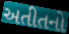
અતીતનો